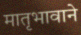
मातृभावाने